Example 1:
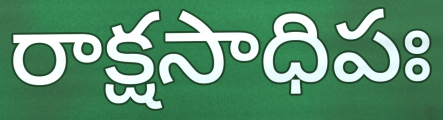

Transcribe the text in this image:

రాక్షసాధిపః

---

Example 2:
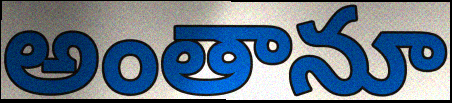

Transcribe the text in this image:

అంతానూ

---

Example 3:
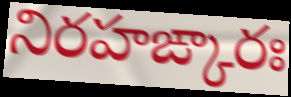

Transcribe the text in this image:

నిరహఙ్కారః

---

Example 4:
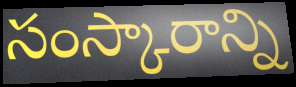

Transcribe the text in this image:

సంస్కారాన్ని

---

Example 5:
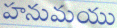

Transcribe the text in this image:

హనుమయు